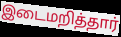
இடைமறித்தார்